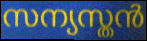
സന്യസ്തൻ